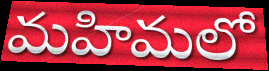
మహిమలో